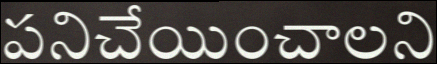
పనిచేయించాలని